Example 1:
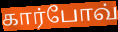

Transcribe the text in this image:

கார்போவ்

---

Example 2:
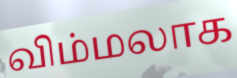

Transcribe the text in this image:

விம்மலாக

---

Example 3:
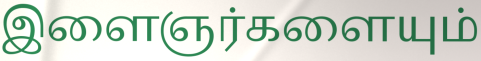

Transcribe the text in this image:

இளைஞர்களையும்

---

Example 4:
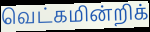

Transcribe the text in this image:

வெட்கமின்றிக்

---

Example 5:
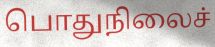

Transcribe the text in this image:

பொதுநிலைச்